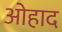
ओहाद